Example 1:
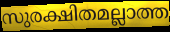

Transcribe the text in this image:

സുരക്ഷിതമല്ലാത്ത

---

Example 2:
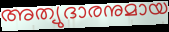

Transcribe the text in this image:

അത്യുദാരനുമായ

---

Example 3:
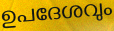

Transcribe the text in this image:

ഉപദേശവും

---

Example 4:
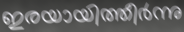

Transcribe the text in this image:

ഇരയായിത്തീർന്നു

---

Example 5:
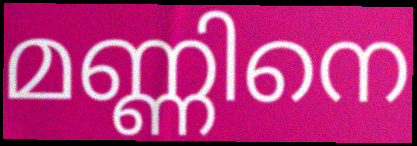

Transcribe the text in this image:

മണ്ണിനെ